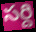
సర్ది